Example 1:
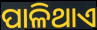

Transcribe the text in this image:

ପାଳିଥାଏ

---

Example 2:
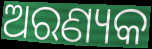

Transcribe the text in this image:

ଅରଣ୍ୟକ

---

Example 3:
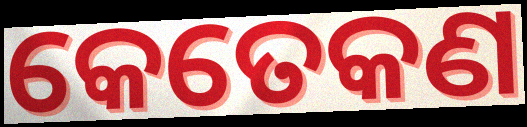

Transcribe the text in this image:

କେତେକଣ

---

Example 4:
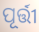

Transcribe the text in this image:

ପୂର୍ତ୍ତୀ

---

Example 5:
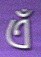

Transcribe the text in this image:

ଏଁ